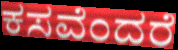
ಕಸವೆಂದರೆ